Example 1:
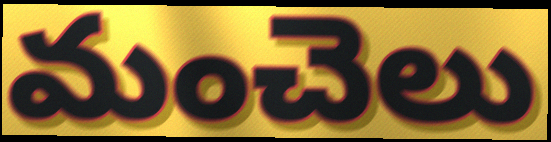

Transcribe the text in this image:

మంచెలు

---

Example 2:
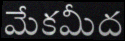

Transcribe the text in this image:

మేకమీద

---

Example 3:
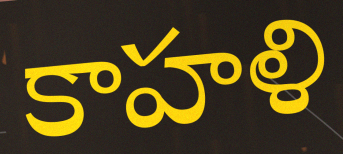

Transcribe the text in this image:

కాహళి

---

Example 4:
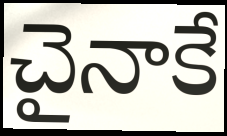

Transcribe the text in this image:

చైనాకే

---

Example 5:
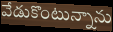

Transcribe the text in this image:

వేడుకొంటున్నాను